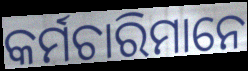
କର୍ମଚାରିମାନେ